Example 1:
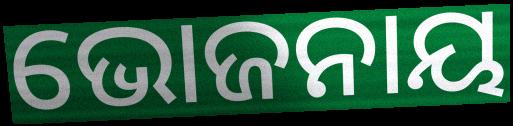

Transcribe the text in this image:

ଭୋଜନାୟ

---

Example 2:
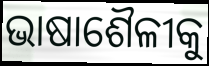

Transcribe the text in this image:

ଭାଷାଶୈଳୀକୁ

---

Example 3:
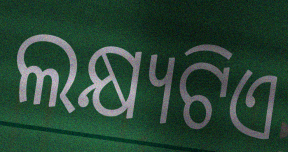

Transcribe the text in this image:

ଲକ୍ଷ୍ୟଟିଏ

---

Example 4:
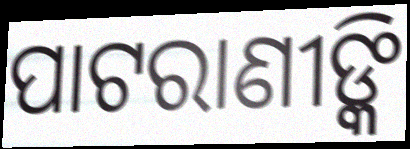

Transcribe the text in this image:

ପାଟରାଣୀଙ୍କି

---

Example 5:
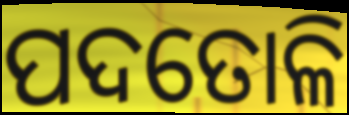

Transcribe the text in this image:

ପଦତୋଳି